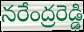
నరేంద్రరెడ్డి